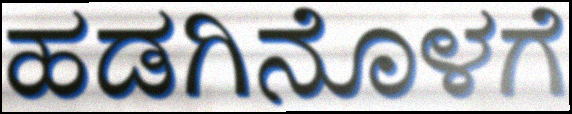
ಹಡಗಿನೊಳಗೆ